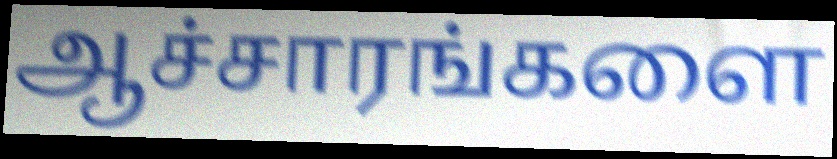
ஆச்சாரங்களை